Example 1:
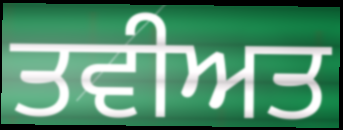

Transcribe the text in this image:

ਤਵੀਅਤ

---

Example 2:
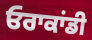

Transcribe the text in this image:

ਓਰਾਕਾਂਡੀ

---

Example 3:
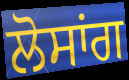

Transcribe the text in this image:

ਲੋਸਾਂਗ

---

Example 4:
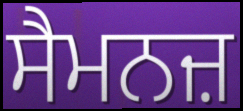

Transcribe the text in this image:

ਸੈਮਨਜ਼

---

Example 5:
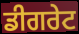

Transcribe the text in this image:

ਡੀਗਰੇਟ